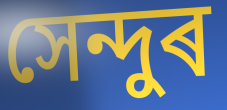
সেন্দুৰ